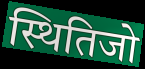
स्थितिजो